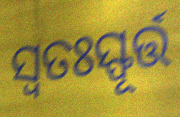
ସ୍ୱତଃସ୍ଫୂର୍ତ୍ତ